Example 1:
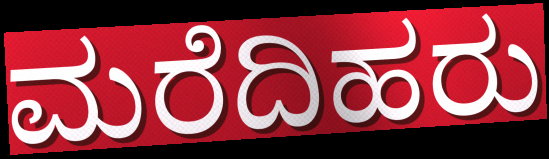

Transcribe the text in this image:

ಮರೆದಿಹರು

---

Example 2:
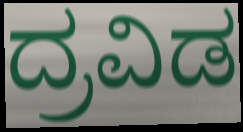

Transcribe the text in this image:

ದ್ರವಿಡ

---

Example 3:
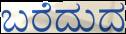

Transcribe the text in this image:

ಬರೆದುದ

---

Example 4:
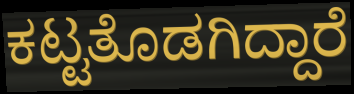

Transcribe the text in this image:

ಕಟ್ಟತೊಡಗಿದ್ದಾರೆ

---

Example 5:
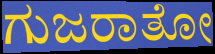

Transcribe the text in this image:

ಗುಜರಾತೋ